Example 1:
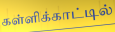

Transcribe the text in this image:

கள்ளிக்காட்டில்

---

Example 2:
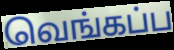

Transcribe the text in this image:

வெங்கப்ப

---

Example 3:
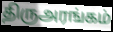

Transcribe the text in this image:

திருஅரங்கம்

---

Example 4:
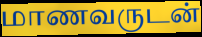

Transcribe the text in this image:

மாணவருடன்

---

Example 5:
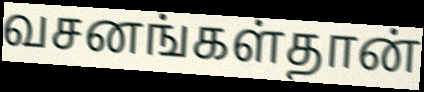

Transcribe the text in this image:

வசனங்கள்தான்